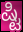
ಷ್ಟಿ